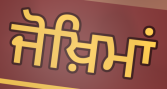
ਜੋਖ਼ਿਮਾਂ